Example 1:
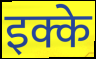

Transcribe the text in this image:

इक्के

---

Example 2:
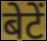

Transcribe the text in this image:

बेटें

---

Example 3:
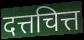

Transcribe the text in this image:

दत्तचित्त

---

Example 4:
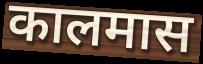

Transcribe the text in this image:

कालमास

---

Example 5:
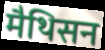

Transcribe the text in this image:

मैथिसन